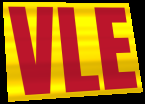
VLE